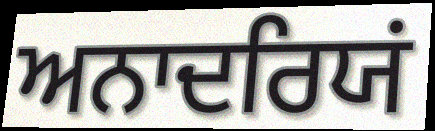
ਅਨਾਦਰਿਯਂ